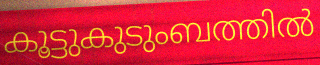
കൂട്ടുകുടുംബത്തിൽ